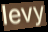
levy